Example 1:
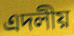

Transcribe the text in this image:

এদলীয়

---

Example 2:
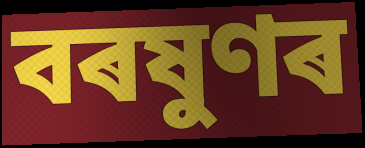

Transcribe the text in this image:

বৰষুণৰ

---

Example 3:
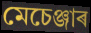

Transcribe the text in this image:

মেচেঞ্জাৰ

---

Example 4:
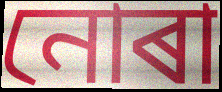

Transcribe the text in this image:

নোৰা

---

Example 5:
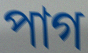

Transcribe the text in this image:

পাগ